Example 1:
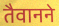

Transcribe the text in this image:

तैवानने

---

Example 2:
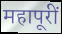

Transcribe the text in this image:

महापूरीं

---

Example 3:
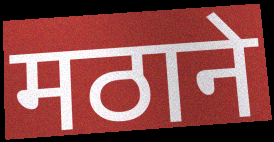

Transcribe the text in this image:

मठाने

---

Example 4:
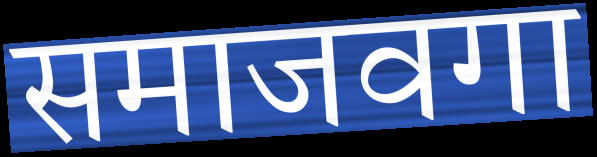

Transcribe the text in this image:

समाजवगा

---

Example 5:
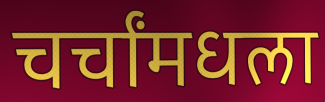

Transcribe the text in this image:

चर्चांमधला